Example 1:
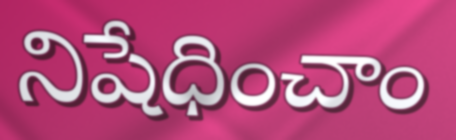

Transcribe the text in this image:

నిషేధించాం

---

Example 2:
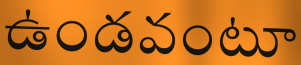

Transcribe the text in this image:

ఉండవంటూ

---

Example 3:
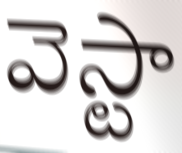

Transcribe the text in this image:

వెస్టా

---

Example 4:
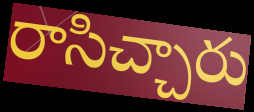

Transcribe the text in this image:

రాసిచ్చారు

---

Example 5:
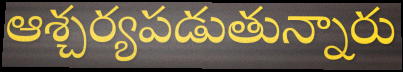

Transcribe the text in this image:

ఆశ్చర్యపడుతున్నారు